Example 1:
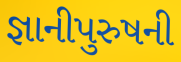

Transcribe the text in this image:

જ્ઞાનીપુરુષની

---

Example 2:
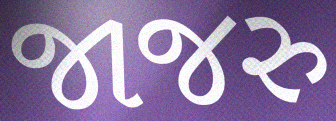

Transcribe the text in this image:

જાજરુ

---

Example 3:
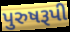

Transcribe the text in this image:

પુરુષરૂપી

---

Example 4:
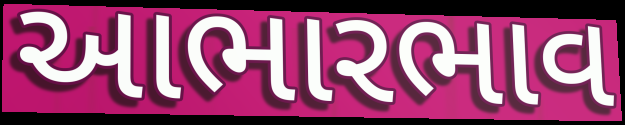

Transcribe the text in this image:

આભારભાવ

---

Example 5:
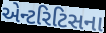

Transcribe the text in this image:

એન્ટરિટિસના